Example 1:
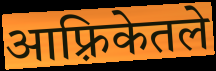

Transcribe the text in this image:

आफ़्रिकेतले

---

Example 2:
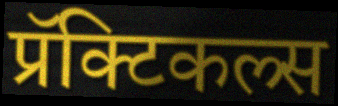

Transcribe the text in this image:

प्रॅक्टिकल्स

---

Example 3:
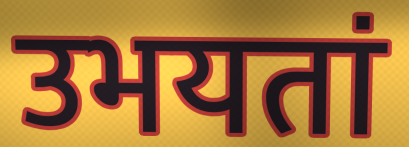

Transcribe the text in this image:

उभयतां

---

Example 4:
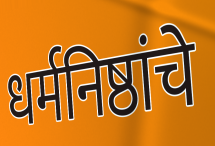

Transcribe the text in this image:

धर्मनिष्ठांचे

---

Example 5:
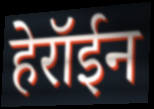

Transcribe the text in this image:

हेरॉईन